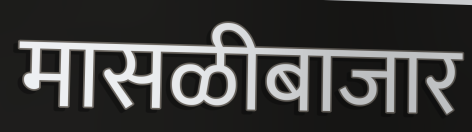
मासळीबाजार